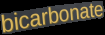
bicarbonate